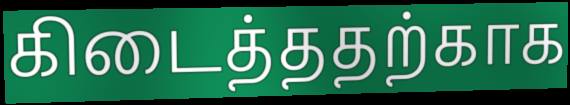
கிடைத்ததற்காக